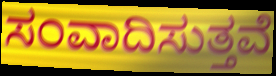
ಸಂವಾದಿಸುತ್ತವೆ